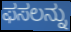
ಫಸಲನ್ನು